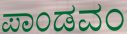
ಪಾಂಡವಂ